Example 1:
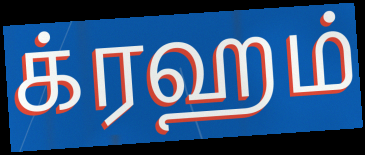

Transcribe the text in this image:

க்ரஹம்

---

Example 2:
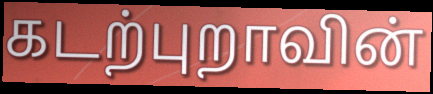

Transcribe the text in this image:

கடற்புறாவின்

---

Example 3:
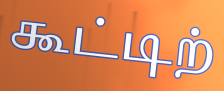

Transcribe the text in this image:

கூட்டிற்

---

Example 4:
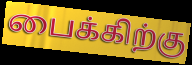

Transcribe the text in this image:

பைக்கிற்கு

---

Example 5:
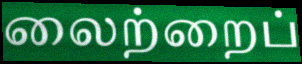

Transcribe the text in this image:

லைற்றைப்